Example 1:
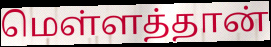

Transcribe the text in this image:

மெள்ளத்தான்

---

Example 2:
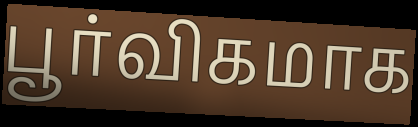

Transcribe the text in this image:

பூர்விகமாக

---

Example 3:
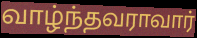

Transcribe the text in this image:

வாழ்ந்தவராவார்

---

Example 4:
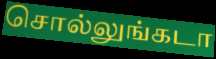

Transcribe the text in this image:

சொல்லுங்கடா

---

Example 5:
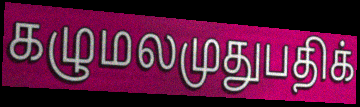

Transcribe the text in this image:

கழுமலமுதுபதிக்